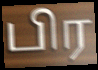
பிர